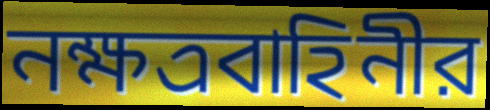
নক্ষত্রবাহিনীর